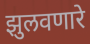
झुलवणारे